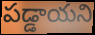
పడ్డాయని